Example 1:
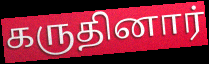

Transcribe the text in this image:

கருதினார்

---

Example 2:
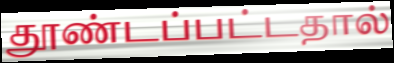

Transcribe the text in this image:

தூண்டப்பட்டதால்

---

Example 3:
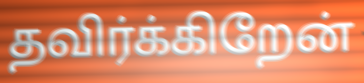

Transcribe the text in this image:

தவிர்க்கிறேன்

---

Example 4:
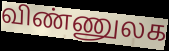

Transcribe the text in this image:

விண்ணுலக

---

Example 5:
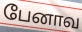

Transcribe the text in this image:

பேனாவ